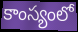
కాంస్యంలో